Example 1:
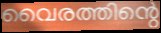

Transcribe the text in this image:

വൈരത്തിന്റെ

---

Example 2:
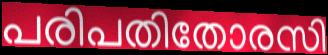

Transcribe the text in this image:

പരിപതിതോരസി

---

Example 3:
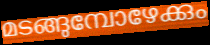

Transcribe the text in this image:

മടങ്ങുമ്പോഴേക്കും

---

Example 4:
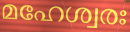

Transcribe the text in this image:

മഹേശ്വരഃ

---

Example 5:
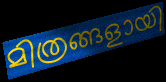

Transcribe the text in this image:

മിത്രങ്ങളായി